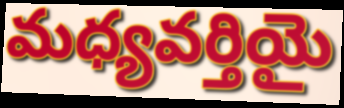
మధ్యవర్తియై